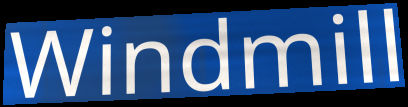
Windmill